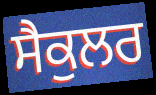
ਸੈਕੁਲਰ